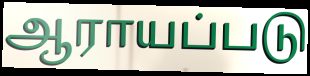
ஆராயப்படு